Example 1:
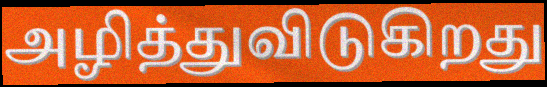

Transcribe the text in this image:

அழித்துவிடுகிறது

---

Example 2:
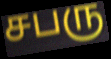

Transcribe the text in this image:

சபரு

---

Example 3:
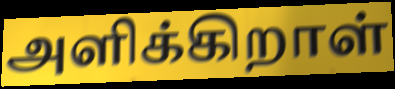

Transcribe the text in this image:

அளிக்கிறாள்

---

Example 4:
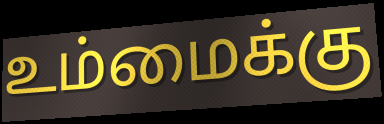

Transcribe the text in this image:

உம்மைக்கு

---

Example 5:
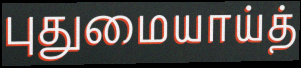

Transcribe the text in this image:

புதுமையாய்த்